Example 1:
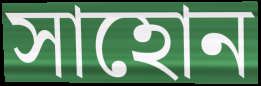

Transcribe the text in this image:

সাহোন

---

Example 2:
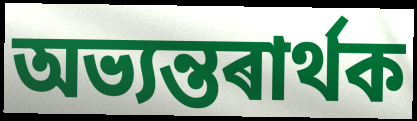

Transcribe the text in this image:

অভ্যন্তৰাৰ্থক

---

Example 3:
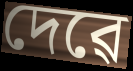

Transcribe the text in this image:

দেৱে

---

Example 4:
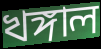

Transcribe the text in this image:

খঙ্গাল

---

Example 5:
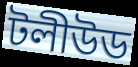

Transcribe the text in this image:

টলীউড